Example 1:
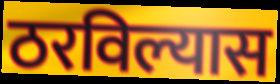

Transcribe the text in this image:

ठरविल्यास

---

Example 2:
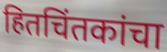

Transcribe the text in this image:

हितचिंतकांचा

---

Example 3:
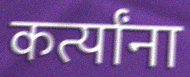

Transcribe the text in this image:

कर्त्यांना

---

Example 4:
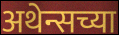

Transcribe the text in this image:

अथेन्सच्या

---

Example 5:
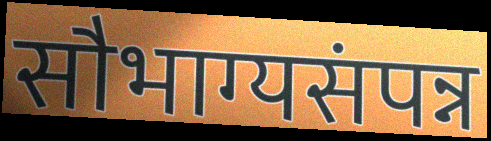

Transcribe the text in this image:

सौभाग्यसंपन्न